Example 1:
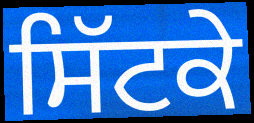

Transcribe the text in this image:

ਸਿੱਟਕੇ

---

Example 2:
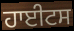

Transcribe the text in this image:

ਹਾਈਟਸ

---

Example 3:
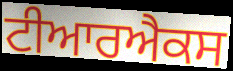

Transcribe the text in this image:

ਟੀਆਰਐਕਸ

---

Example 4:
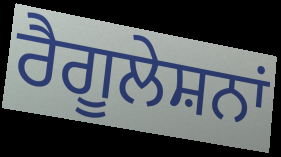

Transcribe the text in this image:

ਰੈਗੂਲੇਸ਼ਨਾਂ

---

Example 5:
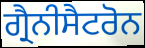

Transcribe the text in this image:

ਗ੍ਰੈਨੀਸੈਟਰੋਨ